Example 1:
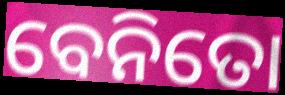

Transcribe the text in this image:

ବେନିତୋ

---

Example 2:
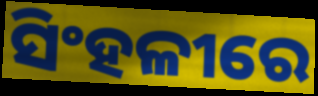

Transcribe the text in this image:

ସିଂହଳୀରେ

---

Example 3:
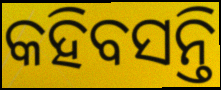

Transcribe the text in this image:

କହିବସନ୍ତି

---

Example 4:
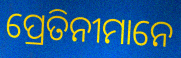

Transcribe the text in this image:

ପ୍ରେତିନୀମାନେ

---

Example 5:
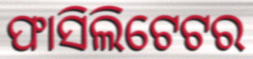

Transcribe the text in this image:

ଫାସିଲିଟେଟର